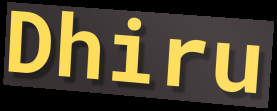
Dhiru